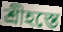
শ্রীহস্তে